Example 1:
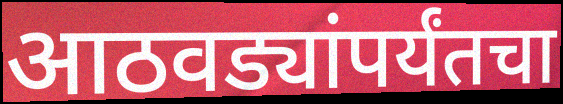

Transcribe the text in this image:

आठवड्यांपर्यंतचा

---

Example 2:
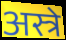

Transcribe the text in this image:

अस्त्रे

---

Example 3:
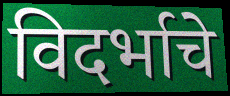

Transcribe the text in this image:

विदर्भाचे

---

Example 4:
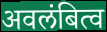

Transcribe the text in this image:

अवलंबित्व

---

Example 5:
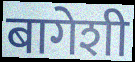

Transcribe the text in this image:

बागेशी